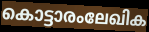
കൊട്ടാരംലേഖിക